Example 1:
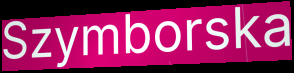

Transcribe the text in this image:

Szymborska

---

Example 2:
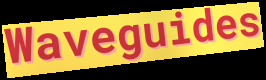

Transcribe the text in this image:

Waveguides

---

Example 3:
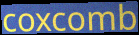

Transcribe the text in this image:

coxcomb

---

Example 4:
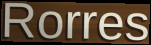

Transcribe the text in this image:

Rorres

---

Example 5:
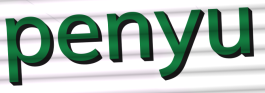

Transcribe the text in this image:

penyu